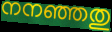
നനഞ്ഞതു